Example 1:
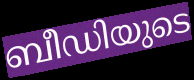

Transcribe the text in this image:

ബീഡിയുടെ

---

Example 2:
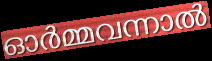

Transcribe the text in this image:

ഓർമ്മവന്നാൽ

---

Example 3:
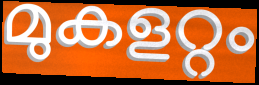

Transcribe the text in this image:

മുകളറ്റം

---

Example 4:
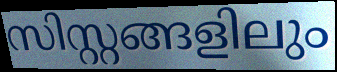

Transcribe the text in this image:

സിസ്റ്റങ്ങളിലും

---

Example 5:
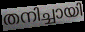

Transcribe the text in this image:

തനിച്ചായി